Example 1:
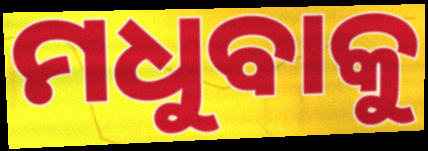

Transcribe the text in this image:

ମଧୁବାକୁ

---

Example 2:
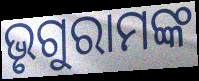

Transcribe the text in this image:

ଭୃଗୁରାମଙ୍କ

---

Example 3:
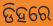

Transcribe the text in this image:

ଡିହରେ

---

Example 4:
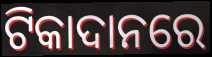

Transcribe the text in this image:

ଟିକାଦାନରେ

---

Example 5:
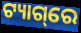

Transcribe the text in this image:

ଟ୍ୟାଗ୍‌ରେ